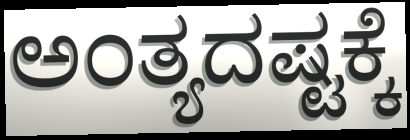
ಅಂತ್ಯದಷ್ಟಕ್ಕೆ